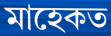
মাহেকত